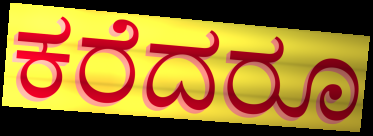
ಕರೆದರೂ